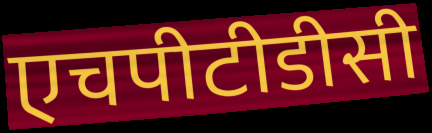
एचपीटीडीसी